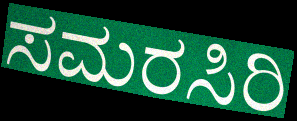
ಸಮರಸಿರಿ